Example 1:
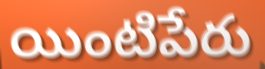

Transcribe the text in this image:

యింటిపేరు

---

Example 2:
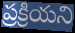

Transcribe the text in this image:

ప్రక్రియని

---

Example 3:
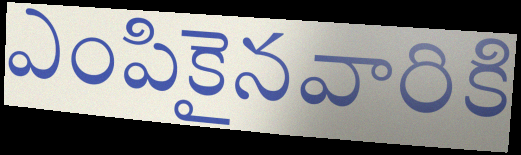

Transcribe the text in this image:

ఎంపికైనవారికి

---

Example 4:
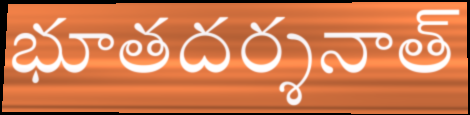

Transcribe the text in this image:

భూతదర్శనాత్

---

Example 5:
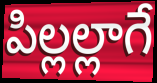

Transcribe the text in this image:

పిల్లల్లాగే